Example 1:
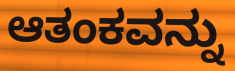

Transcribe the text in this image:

ಆತಂಕವನ್ನು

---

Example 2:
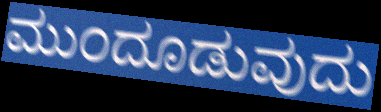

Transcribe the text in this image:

ಮುಂದೂಡುವುದು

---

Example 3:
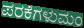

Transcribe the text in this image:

ಪರಕೆಗಳುಮಂ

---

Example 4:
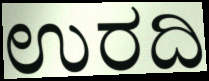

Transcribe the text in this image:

ಉರದಿ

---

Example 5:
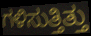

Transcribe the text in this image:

ಗಳಿಸುತ್ತಿತ್ತು